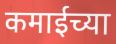
कमाईच्या